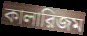
কালারিজম